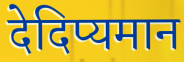
देदिप्यमान